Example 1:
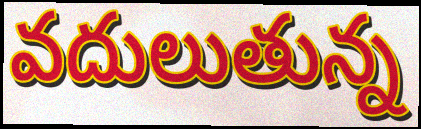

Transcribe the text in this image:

వదులుతున్న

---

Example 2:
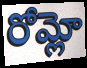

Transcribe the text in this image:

రోమ్లో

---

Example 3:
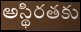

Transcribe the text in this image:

అస్థిరతకు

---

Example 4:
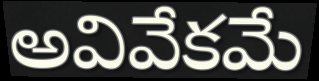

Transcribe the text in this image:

అవివేకమే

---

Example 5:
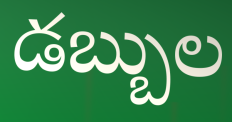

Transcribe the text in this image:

డబ్బుల